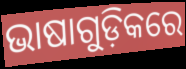
ଭାଷାଗୁଡ଼ିକରେ